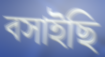
বসাইছি